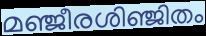
മഞ്ജീരശിഞ്ജിതം